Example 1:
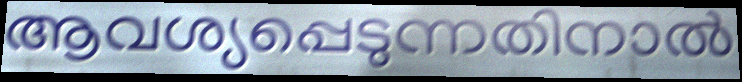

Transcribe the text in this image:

ആവശ്യപ്പെടുന്നതിനാൽ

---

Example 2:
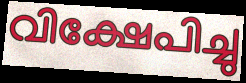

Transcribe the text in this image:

വിക്ഷേപിച്ചു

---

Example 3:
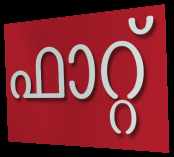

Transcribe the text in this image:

ഫാറ്റ്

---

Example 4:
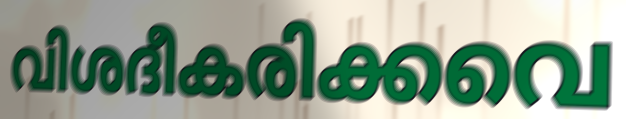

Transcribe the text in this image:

വിശദീകരിക്കവെ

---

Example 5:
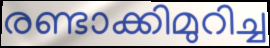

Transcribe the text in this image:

രണ്ടാക്കിമുറിച്ച